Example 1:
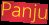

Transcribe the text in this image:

Panju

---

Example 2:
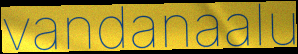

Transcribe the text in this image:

vandanaalu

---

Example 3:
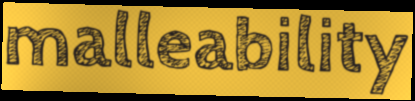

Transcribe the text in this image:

malleability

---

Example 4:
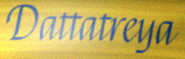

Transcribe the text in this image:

Dattatreya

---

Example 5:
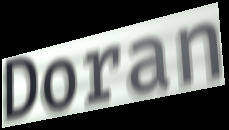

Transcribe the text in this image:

Doran